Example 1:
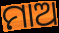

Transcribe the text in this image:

ମାଅ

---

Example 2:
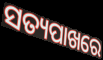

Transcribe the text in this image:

ସତ୍ୟପାଖରେ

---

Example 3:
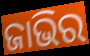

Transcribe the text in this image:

ଜାଭିର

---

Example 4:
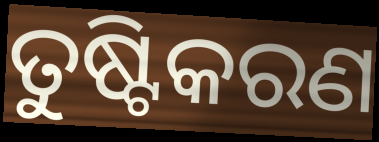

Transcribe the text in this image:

ତୁଷ୍ଟିକରଣ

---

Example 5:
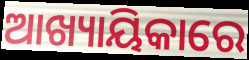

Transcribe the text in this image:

ଆଖ୍ୟାୟିକାରେ